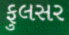
ફુલસર